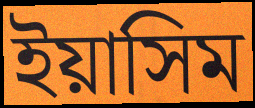
ইয়াসিম